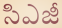
సిఎజీ